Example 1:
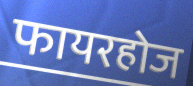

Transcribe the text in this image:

फायरहोज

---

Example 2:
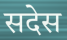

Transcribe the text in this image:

सदेस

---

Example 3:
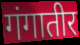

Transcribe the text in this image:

गंगातीर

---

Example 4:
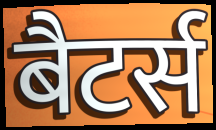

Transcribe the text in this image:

बैटर्स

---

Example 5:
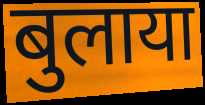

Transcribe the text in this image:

बुलाया